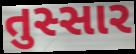
તુસ્સાર